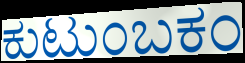
ಕುಟುಂಬಕಂ